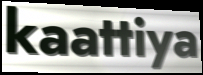
kaattiya